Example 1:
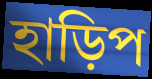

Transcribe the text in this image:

হাড়িপ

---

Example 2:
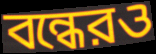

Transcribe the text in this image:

বন্ধেরও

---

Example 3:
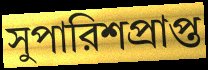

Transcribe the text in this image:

সুপারিশপ্রাপ্ত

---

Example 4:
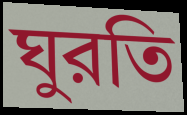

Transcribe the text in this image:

ঘুরতি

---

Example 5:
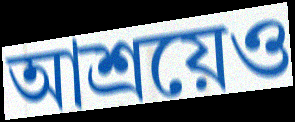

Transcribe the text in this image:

আশ্রয়েও